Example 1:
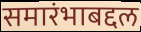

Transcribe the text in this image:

समारंभाबद्दल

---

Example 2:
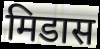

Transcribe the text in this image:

मिडास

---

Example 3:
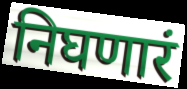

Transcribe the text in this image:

निघणारं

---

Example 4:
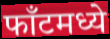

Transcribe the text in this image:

फाँटमध्ये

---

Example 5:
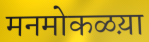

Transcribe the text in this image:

मनमोकळय़ा